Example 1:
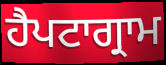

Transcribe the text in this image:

ਹੈਪਟਾਗ੍ਰਾਮ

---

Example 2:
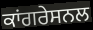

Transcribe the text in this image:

ਕਾਂਗਰੇਸਨਲ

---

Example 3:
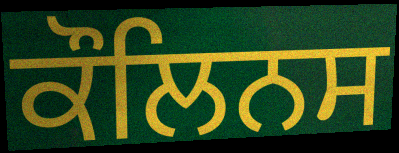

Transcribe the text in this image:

ਕੌਲਿਨਸ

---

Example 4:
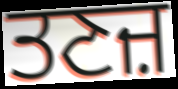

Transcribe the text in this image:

ਤਣਜ਼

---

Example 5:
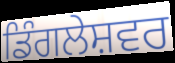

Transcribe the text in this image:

ਡਿੰਗਲੇਸ਼ਵਰ